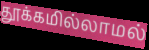
தூக்கமில்லாமல்